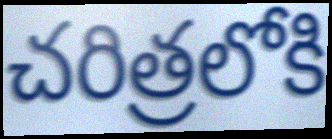
చరిత్రలోకి